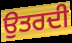
ਉਤਰਦੀ